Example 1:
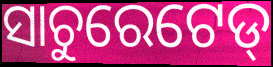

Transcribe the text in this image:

ସାଚୁରେଟେଡ୍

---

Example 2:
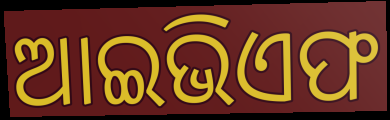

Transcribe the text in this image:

ଆଇଭିଏଫ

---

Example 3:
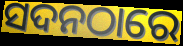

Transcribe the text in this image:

ସଦନଠାରେ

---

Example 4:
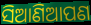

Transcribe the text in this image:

ସିଆଣିଆପଣ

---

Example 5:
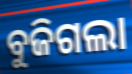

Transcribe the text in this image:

ବୁଜିଗଲା